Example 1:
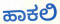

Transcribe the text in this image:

ಹಾಕಲಿ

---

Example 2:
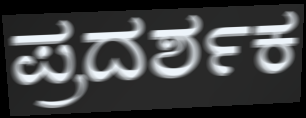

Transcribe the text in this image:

ಪ್ರದರ್ಶಕ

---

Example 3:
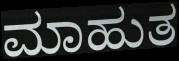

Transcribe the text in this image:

ಮಾಹುತ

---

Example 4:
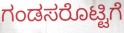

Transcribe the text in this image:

ಗಂಡಸರೊಟ್ಟಿಗೆ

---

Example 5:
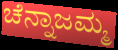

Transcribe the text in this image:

ಚೆನ್ನಾಜಮ್ಮ